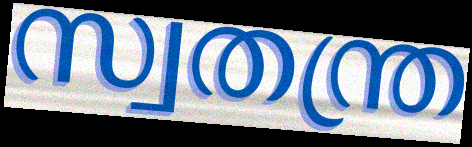
സ്വതന്ത്ര